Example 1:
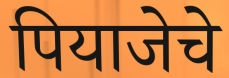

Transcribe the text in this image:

पियाजेचे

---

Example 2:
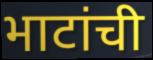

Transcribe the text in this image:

भाटांची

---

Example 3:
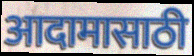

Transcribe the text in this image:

आदामासाठी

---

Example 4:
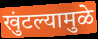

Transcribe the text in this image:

खुंटल्यामुळे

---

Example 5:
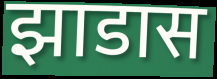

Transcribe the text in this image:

झाडास